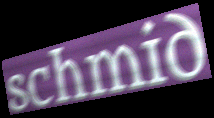
schmid